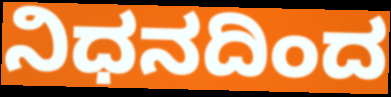
ನಿಧನದಿಂದ